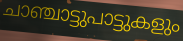
ചാഞ്ചാട്ടുപാട്ടുകളും